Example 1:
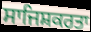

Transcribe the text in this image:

ਸਾਜਿਸ਼ਕਰਤਾ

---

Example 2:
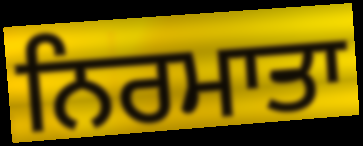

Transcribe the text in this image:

ਨਿਰਮਾਤਾ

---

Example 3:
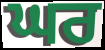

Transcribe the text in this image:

ਘਰ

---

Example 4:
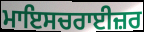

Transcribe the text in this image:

ਮਾਇਸਚਰਾਈਜ਼ਰ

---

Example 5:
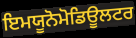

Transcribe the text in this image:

ਇਮਯੂਨੋਮੋਡਿਊਲਟਰ